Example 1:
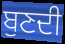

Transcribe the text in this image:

ਬੁਣਦੀ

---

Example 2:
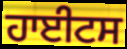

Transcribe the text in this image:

ਹਾਈਟਸ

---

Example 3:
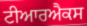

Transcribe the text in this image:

ਟੀਆਰਐਕਸ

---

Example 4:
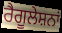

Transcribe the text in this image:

ਰੈਗੂਲੇਸ਼ਨਾਂ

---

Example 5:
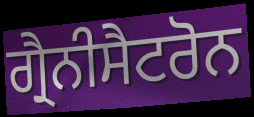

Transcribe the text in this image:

ਗ੍ਰੈਨੀਸੈਟਰੋਨ